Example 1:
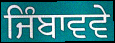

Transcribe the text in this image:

ਜਿੰਬਾਵਵੇ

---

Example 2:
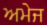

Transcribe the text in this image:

ਅਮੇਜ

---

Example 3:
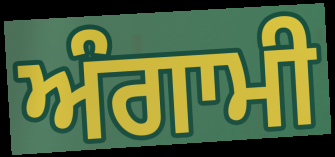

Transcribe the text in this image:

ਅੰਗਾਮੀ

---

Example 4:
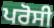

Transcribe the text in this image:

ਪਰੋਸੀ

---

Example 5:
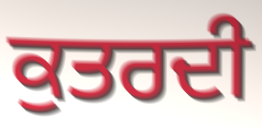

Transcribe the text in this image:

ਕੁਤਰਦੀ